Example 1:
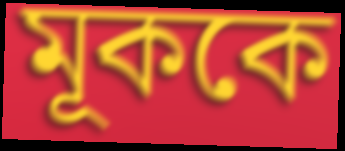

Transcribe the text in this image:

মূককে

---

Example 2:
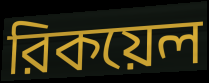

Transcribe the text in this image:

রিকয়েল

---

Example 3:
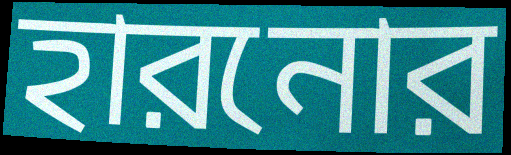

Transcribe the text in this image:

হারনোর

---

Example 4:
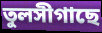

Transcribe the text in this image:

তুলসীগাছে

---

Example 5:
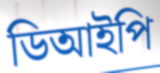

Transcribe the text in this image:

ডিআইপি